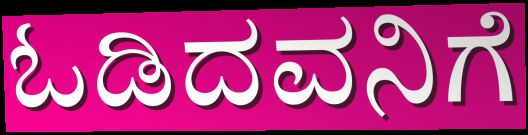
ಓಡಿದವನಿಗೆ